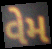
વેમ